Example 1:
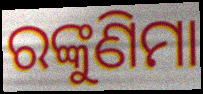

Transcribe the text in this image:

ରଙ୍କୁଣିମା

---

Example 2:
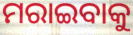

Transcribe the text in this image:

ମରାଇବାକୁ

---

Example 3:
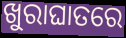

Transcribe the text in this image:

ଖୁରାଘାତରେ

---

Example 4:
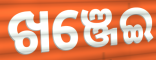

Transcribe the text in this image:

ଖଞ୍ଜେଇ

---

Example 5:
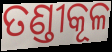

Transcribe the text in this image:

ତଣ୍ଡୀକୂଳ